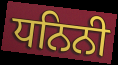
ਧਨਿਨੀ